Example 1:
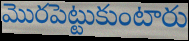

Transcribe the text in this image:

మొరపెట్టుకుంటారు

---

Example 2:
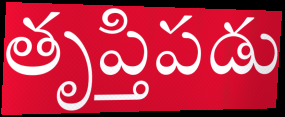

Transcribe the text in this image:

తృప్తిపడు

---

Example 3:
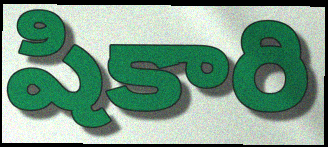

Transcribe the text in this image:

షికారి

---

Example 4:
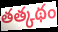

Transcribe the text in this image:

తత్కథం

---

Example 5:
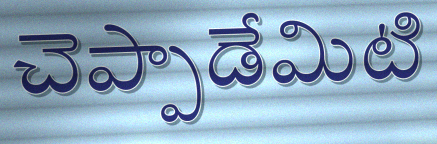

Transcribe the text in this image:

చెప్పాడేమిటి